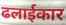
ढलाईकार